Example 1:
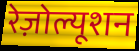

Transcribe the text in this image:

रेज़ोल्यूशन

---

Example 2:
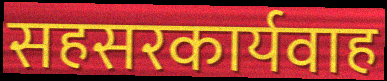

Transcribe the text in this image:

सहसरकार्यवाह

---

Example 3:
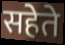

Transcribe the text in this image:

सहेते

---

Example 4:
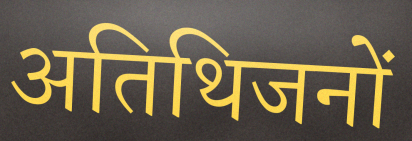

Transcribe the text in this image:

अतिथिजनों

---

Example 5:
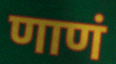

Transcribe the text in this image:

णाणं